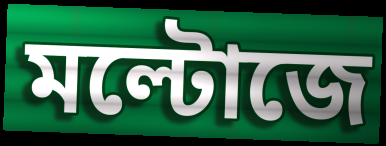
মল্টোজে